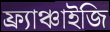
ফ্র্যাঞ্চাইজি